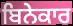
ਬਿਨੇਕਾਰ